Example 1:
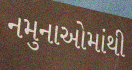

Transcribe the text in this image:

નમુનાઓમાંથી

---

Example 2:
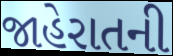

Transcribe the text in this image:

જાહેરાતની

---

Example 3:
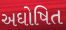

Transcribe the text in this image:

અઘોષિત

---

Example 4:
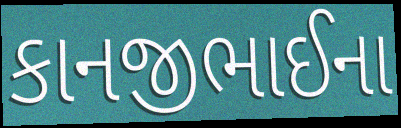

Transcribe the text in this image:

કાનજીભાઈના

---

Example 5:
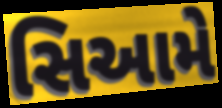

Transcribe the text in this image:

સિઆમે